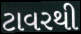
ટાવરથી